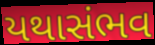
યથાસંભવ